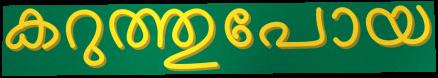
കറുത്തുപോയ